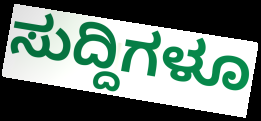
ಸುದ್ದಿಗಳೂ